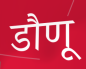
डौणू